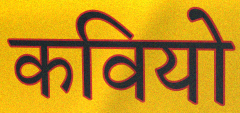
कवियो